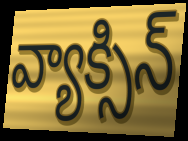
వ్యాక్సిన్